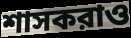
শাসকরাও